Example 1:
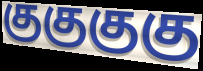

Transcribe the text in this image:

குகுகுகு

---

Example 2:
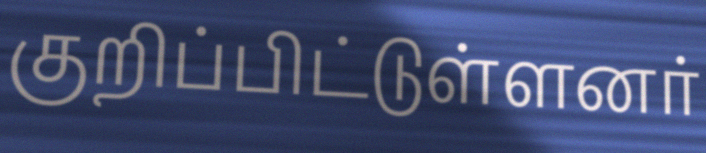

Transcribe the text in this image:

குறிப்பிட்டுள்ளனர்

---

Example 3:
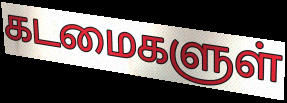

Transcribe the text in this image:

கடமைகளுள்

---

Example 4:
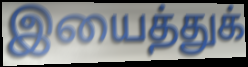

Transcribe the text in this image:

இயைத்துக்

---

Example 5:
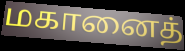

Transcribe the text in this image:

மகானைத்